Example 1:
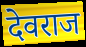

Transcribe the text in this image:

देवराज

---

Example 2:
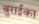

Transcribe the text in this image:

बुराईका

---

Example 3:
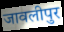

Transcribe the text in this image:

जावलीपुर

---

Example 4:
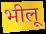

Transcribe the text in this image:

भीलू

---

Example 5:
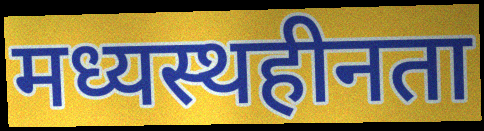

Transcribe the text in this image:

मध्यस्थहीनता